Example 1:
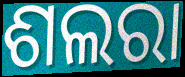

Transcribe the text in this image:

ଶଲରା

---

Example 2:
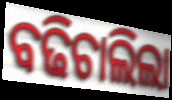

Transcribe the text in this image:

ବଢିଚାଲିଲା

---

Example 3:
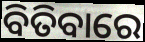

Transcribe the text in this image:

ବିତିବାରେ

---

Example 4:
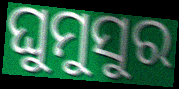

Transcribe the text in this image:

ଘୁମୁସୁର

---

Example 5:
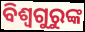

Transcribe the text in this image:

ବିଶ୍ୱଗୁରୁଙ୍କ